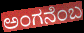
ಅಂಗನೆಂಬ